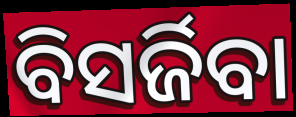
ବିସର୍ଜିବା